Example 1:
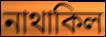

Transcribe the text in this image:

নাথাকিল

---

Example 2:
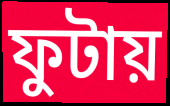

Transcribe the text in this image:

ফুটায়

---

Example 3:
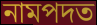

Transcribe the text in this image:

নামপদত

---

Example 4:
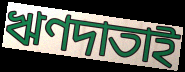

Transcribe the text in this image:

ঋণদাতাই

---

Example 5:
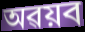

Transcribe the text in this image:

অৱয়ব